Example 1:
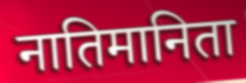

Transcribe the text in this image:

नातिमानिता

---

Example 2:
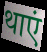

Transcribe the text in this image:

थाएं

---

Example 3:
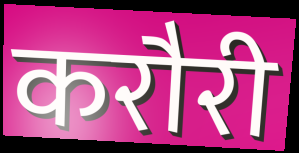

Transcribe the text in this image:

करौरी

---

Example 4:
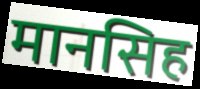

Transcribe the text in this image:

मानसिह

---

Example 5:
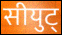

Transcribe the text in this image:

सीयुट्